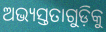
ଅଭ୍ୟସ୍ତତାଗୁଡ଼ିକୁ